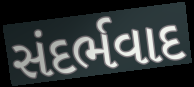
સંદર્ભવાદ